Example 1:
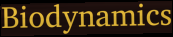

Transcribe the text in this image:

Biodynamics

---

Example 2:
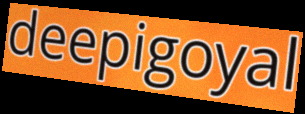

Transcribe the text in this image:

deepigoyal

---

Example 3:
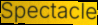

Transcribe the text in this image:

Spectacle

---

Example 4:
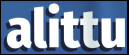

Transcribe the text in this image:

alittu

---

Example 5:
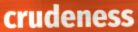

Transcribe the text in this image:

crudeness